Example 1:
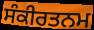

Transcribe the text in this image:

ਸੰਕੀਰਤਨਮ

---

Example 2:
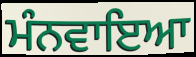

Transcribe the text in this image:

ਮੰਨਵਾਇਆ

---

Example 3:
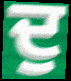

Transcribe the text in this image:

ਦੁ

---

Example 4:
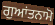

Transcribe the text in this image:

ਗੁਆਂਤਨਾਮੋ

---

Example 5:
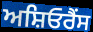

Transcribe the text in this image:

ਅਸ਼ਿਓਰੈਂਸ